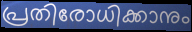
പ്രതിരോധിക്കാനും